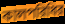
কালপরিধির